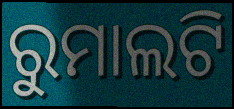
ରୁମାଲଟି